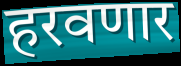
हरवणार